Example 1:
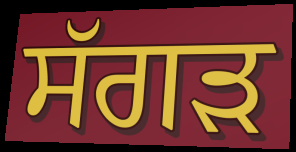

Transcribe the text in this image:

ਸੱਗੜ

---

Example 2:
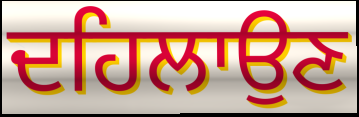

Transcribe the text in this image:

ਦਹਿਲਾਉਣ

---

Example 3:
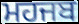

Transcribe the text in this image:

ਮਹਜਬ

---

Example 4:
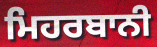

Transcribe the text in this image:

ਮਿਹਰਬਾਨੀ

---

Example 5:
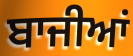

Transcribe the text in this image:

ਬਾਜੀਆਂ